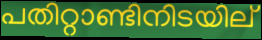
പതിറ്റാണ്ടിനിടയില്